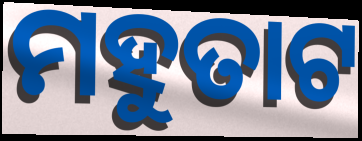
ମହୁତାଟ